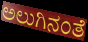
ಅಲುಗಿನಂತೆ